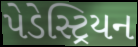
પેડેસ્ટ્રિયન